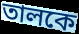
তালকে